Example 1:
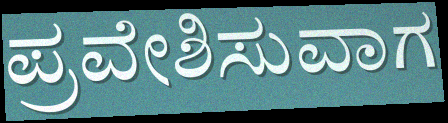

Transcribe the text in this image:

ಪ್ರವೇಶಿಸುವಾಗ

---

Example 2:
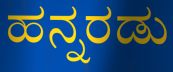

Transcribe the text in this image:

ಹನ್ನರಡು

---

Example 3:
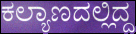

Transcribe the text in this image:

ಕಲ್ಯಾಣದಲ್ಲಿದ್ದ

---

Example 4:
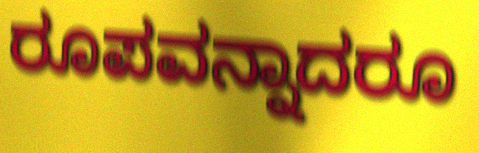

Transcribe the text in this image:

ರೂಪವನ್ನಾದರೂ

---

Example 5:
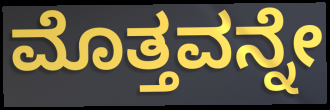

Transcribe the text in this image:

ಮೊತ್ತವನ್ನೇ